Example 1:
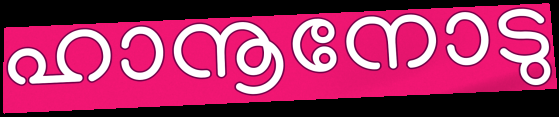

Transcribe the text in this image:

ഹാനൂനോടു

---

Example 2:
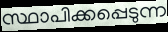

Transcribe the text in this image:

സ്ഥാപിക്കപ്പെടുന്ന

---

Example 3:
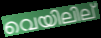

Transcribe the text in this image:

വെയിലില്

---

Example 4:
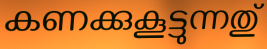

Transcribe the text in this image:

കണക്കുകൂട്ടുന്നതു്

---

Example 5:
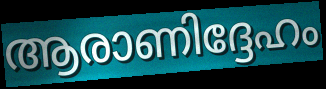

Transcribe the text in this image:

ആരാണിദ്ദേഹം